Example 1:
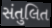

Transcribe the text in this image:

સંતુલિત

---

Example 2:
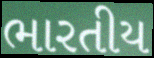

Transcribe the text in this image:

ભારતીય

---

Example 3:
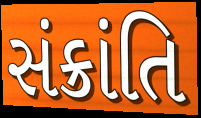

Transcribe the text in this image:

સંક્રાંતિ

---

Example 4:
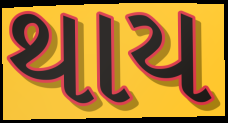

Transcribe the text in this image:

થાય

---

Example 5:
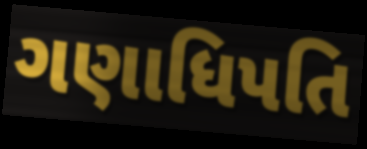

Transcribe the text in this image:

ગણાધિપતિ